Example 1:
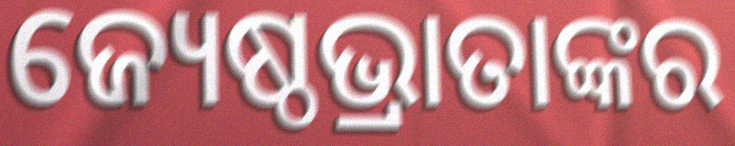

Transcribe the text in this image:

ଜ୍ୟେଷ୍ଠଭ୍ରାତାଙ୍କର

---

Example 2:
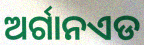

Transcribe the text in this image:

ଅର୍ଗାନଏଡ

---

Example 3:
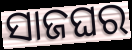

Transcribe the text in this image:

ସାଜଘର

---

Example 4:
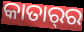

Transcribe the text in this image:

କାତାର୍‌ର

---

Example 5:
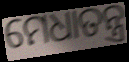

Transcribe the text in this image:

ମେଧାତନ୍ତ୍ର